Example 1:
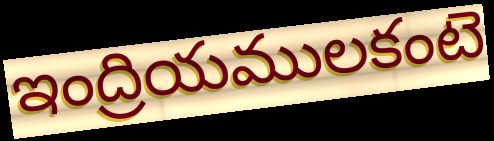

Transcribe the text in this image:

ఇంద్రియములకంటె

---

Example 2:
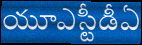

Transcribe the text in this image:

యూఎస్టీడీఏ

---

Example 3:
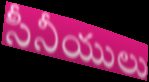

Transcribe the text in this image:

సీనీయులు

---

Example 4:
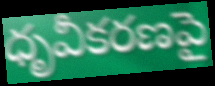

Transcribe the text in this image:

ధృవీకరణపై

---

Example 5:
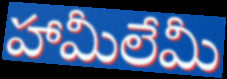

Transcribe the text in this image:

హామీలేమీ